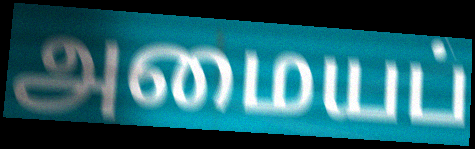
அமையப்